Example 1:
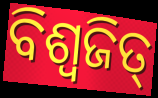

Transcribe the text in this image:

ବିଶ୍ୱଜିତ୍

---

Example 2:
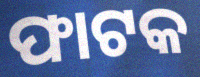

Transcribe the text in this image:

ଫାଟକ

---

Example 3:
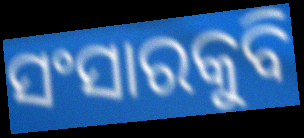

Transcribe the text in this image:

ସଂସାରକୁବି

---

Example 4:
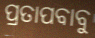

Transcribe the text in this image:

ପ୍ରତାପବାବୁ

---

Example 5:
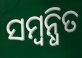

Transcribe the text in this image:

ସମ୍ବନ୍ଧିତ